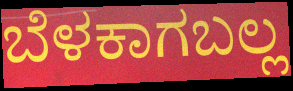
ಬೆಳಕಾಗಬಲ್ಲ